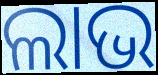
ଲାଭ